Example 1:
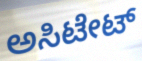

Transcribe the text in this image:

ಅಸಿಟೇಟ್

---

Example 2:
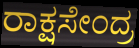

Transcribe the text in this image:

ರಾಕ್ಷಸೇಂದ್ರ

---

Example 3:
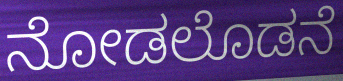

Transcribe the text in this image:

ನೋಡಲೊಡನೆ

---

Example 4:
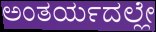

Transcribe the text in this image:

ಅಂತರ್ಯದಲ್ಲೇ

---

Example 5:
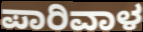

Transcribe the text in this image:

ಪಾರಿವಾಳ